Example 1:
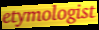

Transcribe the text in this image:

etymologist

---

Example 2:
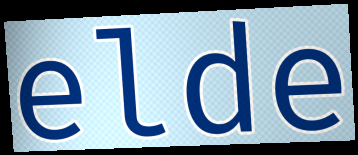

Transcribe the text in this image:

elde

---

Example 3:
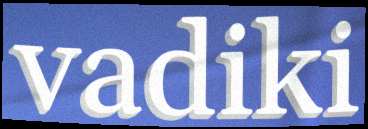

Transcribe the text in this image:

vadiki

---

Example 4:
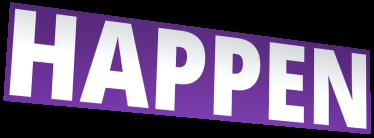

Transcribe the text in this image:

HAPPEN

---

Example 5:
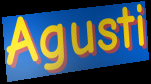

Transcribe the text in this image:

Agusti